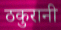
ठकुरानी